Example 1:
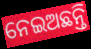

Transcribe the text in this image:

ନେଇଅଛନ୍ତି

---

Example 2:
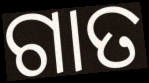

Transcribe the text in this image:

ଗାତ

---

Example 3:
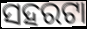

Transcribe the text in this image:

ସହରଟା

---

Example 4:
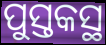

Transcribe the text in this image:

ପୁସ୍ତକସ୍ଥ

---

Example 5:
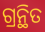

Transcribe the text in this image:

ଗ୍ରନ୍ଥିତ